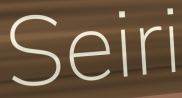
Seiri